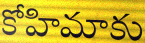
కోహిమాకు